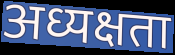
अध्यक्षता